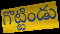
గొట్టిండు